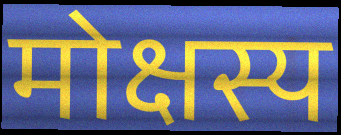
मोक्षस्य